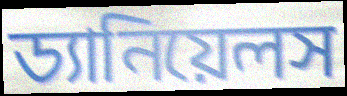
ড্যানিয়েলস